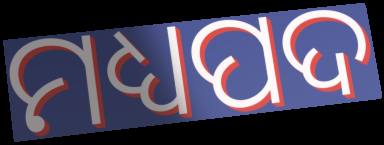
ମଧ୍ୟପଦ